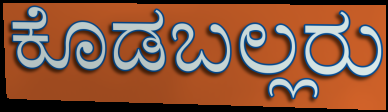
ಕೊಡಬಲ್ಲರು